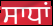
ਸਾਧਾਂ